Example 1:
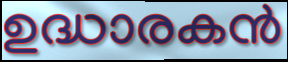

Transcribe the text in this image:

ഉദ്ധാരകൻ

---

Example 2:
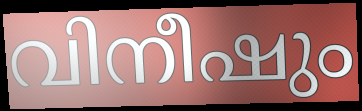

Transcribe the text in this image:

വിനീഷും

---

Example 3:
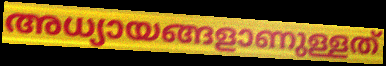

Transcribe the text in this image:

അധ്യായങ്ങളാണുള്ളത്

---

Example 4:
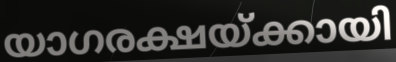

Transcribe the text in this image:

യാഗരക്ഷയ്ക്കായി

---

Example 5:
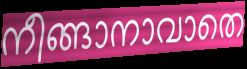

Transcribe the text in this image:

നീങ്ങാനാവാതെ